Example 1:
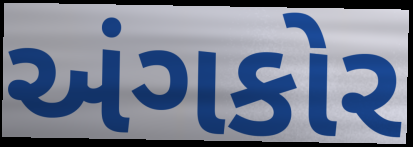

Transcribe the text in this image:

અંગકોર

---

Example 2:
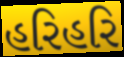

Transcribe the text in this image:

હરિહરિ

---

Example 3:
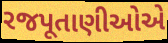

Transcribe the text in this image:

રજપૂતાણીઓએ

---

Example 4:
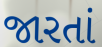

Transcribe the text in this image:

જારતાં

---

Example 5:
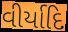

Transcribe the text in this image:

વીર્યાદિ